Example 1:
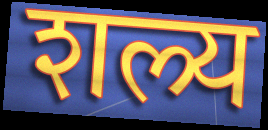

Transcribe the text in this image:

शल्य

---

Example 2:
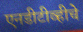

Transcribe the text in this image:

एनडीटीव्हीचे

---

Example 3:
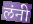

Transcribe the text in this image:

लंनी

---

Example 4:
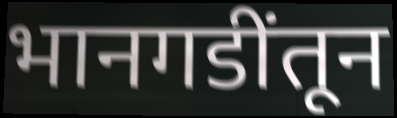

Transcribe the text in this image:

भानगडींतून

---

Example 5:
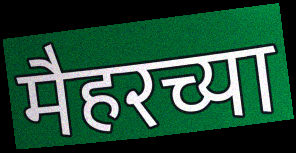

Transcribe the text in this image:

मैहरच्या